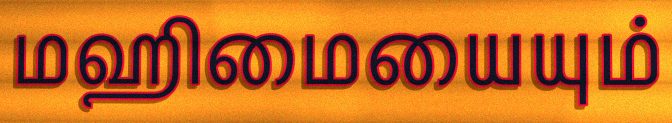
மஹிமையையும்